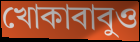
খোকাবাবুও